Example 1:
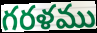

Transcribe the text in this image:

గరళము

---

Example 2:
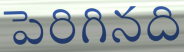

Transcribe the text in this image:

పెరిగినది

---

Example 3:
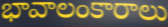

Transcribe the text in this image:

భావాలంకారాలు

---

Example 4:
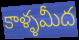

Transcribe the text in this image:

కాళ్ళమీద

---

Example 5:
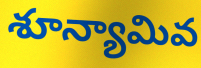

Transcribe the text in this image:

శూన్యామివ